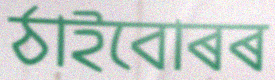
ঠাইবোৰৰ